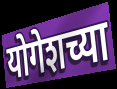
योगेशच्या